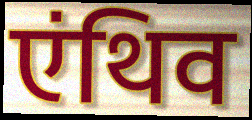
एंथिव